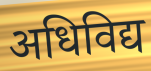
अधिविद्य